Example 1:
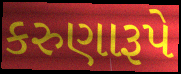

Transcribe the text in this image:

કરુણારૂપે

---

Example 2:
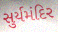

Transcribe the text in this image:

સુર્યમંદિર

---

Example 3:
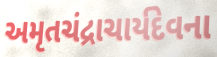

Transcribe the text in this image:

અમૃતચંદ્રાચાર્યદેવના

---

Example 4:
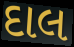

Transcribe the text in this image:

દાલ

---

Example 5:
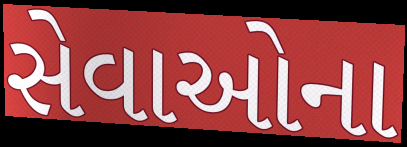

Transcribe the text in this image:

સેવાઓના